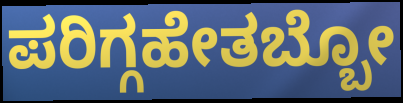
ಪರಿಗ್ಗಹೇತಬ್ಬೋ